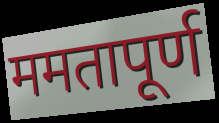
ममतापूर्ण